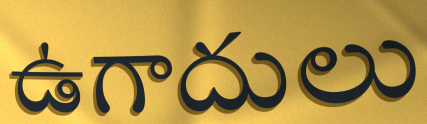
ఉగాదులు